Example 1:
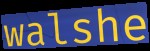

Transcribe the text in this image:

walshe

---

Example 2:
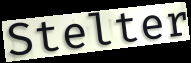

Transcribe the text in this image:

Stelter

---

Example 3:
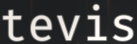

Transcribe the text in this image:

tevis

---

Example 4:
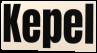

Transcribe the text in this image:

Kepel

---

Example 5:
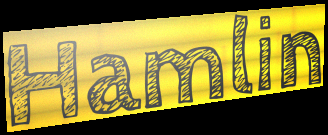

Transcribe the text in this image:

Hamlin